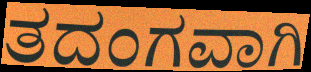
ತದಂಗವಾಗಿ